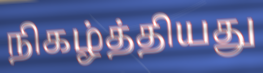
நிகழ்த்தியது